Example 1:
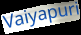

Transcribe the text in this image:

Vaiyapuri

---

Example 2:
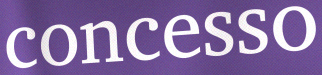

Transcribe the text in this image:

concesso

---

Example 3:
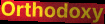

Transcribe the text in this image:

Orthodoxy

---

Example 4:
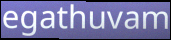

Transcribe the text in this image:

egathuvam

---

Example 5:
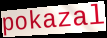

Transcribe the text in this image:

pokazal